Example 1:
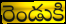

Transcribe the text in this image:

రెండుకి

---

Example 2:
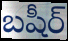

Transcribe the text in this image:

బషీర్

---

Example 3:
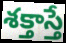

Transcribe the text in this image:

శక్తాస్తే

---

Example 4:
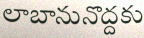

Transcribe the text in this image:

లాబానునొద్దకు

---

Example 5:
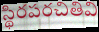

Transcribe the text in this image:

స్థిరపరచితివి